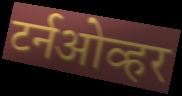
टर्नओव्हर